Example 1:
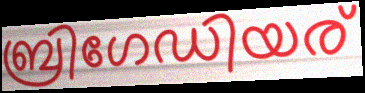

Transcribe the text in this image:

ബ്രിഗേഡിയര്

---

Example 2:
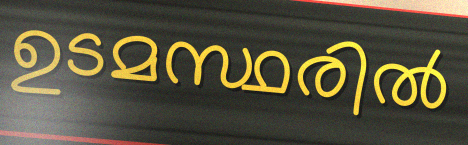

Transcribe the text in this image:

ഉടമസ്ഥരിൽ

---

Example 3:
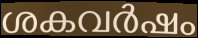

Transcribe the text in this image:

ശകവർഷം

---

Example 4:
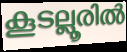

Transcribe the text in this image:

കൂടല്ലൂരിൽ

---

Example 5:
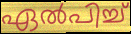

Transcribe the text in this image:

ഏൽപിച്ച്